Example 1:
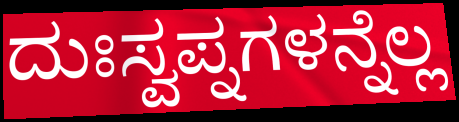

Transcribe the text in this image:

ದುಃಸ್ವಪ್ನಗಳನ್ನೆಲ್ಲ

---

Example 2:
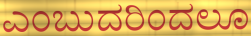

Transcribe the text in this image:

ಎಂಬುದರಿಂದಲೂ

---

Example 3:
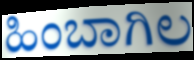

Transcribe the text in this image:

ಹಿಂಬಾಗಿಲ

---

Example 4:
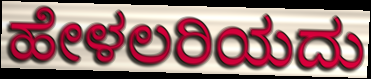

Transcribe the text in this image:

ಹೇಳಲರಿಯದು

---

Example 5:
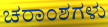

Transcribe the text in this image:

ಚರಾಂಶಗಳು